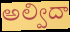
అల్విదా